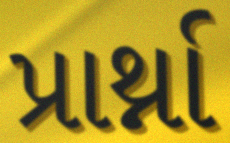
પ્રાર્થ્ના